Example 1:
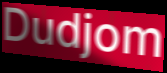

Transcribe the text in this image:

Dudjom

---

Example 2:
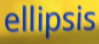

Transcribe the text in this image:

ellipsis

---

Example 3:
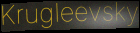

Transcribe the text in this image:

Krugleevsky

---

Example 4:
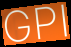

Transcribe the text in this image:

GPI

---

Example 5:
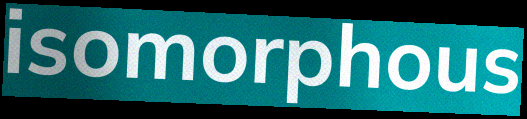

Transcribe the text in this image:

isomorphous